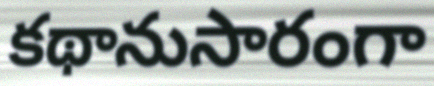
కథానుసారంగా